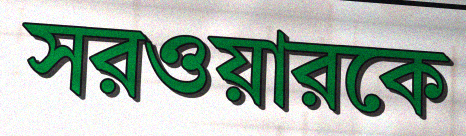
সরওয়ারকে